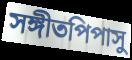
সঙ্গীতপিপাসু